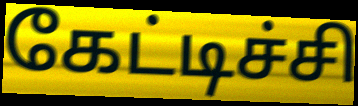
கேட்டிச்சி